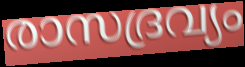
രാസദ്രവ്യം